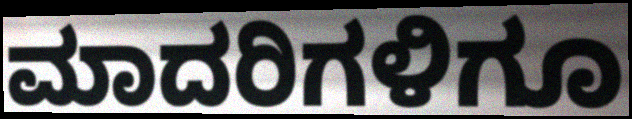
ಮಾದರಿಗಳಿಗೂ